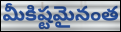
మీకిష్టమైనంత